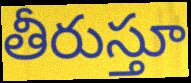
తీరుస్తూ